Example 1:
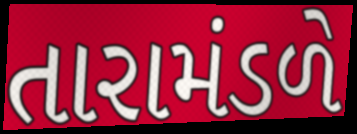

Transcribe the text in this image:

તારામંડળે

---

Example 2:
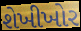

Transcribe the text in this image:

શેખીખોર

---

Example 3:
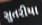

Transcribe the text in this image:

સુતરીયા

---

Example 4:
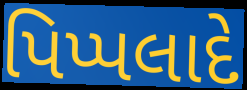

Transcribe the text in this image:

પિપ્પલાદે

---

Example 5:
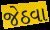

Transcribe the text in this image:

જેઠવા